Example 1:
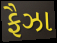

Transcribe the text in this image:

ફૈઝા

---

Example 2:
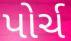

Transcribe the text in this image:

પોર્ચ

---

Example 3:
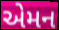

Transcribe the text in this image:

એમન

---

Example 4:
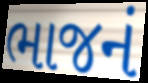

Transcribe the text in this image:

ભાજનં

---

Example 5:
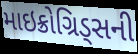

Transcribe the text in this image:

માઇક્રોગ્રિડ્સની